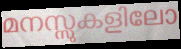
മനസ്സുകളിലോ